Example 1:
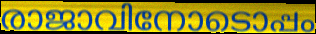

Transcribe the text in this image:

രാജാവിനോടൊപ്പം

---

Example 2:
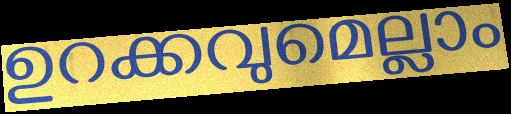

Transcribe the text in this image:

ഉറക്കവുമെല്ലാം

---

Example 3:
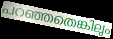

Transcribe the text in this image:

പറഞ്ഞതെങ്കിലും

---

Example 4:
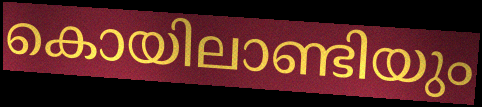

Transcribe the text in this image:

കൊയിലാണ്ടിയും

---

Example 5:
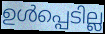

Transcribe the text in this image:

ഉൾപ്പെടില്ല